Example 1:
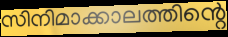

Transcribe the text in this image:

സിനിമാക്കാലത്തിന്റെ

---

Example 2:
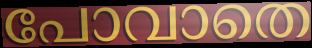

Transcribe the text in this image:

പോവാതെ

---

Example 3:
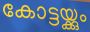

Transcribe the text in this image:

കോട്ടയ്ക്കും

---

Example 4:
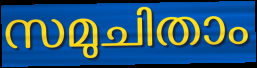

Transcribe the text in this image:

സമുചിതാം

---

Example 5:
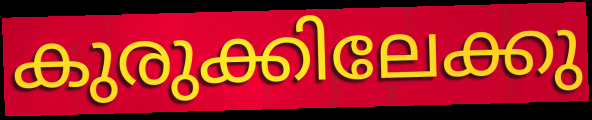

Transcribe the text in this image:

കുരുക്കിലേക്കു